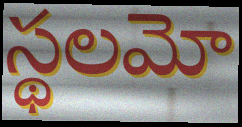
స్థలమో